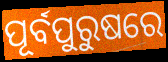
ପୂର୍ବପୁରୁଷରେ